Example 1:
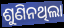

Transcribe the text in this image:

ଶୁଣିନଥିଲା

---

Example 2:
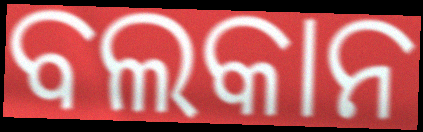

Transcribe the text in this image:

ବଲକାନ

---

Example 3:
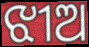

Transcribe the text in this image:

ଝୀଅ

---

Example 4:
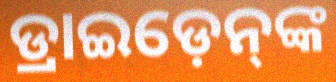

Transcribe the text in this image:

ଡ୍ରାଇଡ଼େନ୍‌ଙ୍କ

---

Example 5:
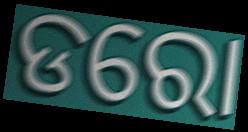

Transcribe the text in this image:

ଡରୋ